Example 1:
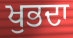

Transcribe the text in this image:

ਖੁਭਦਾ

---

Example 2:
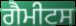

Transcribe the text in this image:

ਗੈਮੀਟਸ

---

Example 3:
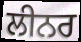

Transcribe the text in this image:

ਲੀਨਰ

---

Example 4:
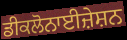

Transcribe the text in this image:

ਡੀਕਲੋਨਾਈਜ਼ੇਸ਼ਨ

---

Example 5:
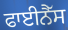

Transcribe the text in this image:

ਫਾਈਨੈੱਸ